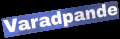
Varadpande